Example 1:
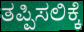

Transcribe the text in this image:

ತಪ್ಪಿಸಲಿಕ್ಕೆ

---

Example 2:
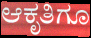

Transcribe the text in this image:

ಆಕೃತಿಗೂ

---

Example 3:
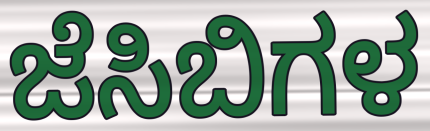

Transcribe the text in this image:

ಜೆಸಿಬಿಗಳ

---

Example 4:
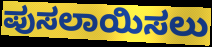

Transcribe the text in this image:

ಪುಸಲಾಯಿಸಲು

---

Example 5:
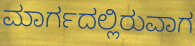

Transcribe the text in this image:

ಮಾರ್ಗದಲ್ಲಿರುವಾಗ